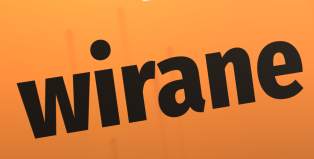
wirane